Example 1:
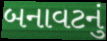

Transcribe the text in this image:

બનાવટનું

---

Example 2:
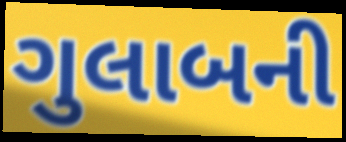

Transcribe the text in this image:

ગુલાબની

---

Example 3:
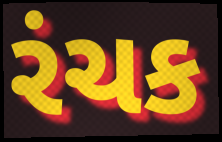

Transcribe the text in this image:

રંચક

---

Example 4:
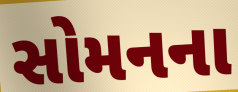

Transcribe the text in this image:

સોમનના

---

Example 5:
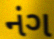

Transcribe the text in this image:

નંગ